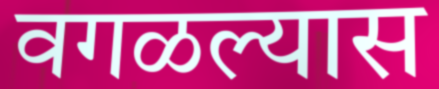
वगळल्यास